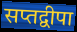
सप्तद्वीपा